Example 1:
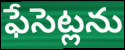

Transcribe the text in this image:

ఫేసెట్లను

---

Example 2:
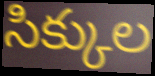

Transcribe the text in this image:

సిక్కుల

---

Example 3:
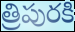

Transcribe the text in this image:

త్రిపురకి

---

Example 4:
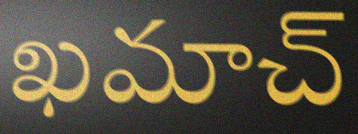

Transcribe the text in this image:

ఖమాచ్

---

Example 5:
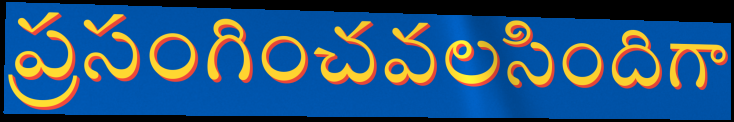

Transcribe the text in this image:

ప్రసంగించవలసిందిగా